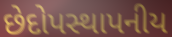
છેદોપસ્થાપનીય